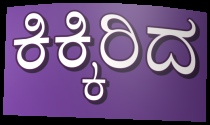
ಕಿಕ್ಕಿರಿದ